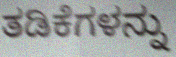
ತಡಿಕೆಗಳನ್ನು